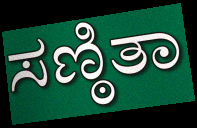
ಸಣ್ಠಿತಾ